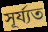
সূৰ্য্যত